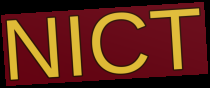
NICT